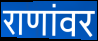
राणांवर